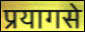
प्रयागसे